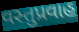
વસ્તુપ્રવાહ